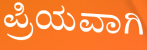
ಪ್ರಿಯವಾಗಿ